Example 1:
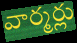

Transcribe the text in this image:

వార్మర్లు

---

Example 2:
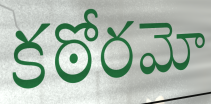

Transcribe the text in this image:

కఠోరమో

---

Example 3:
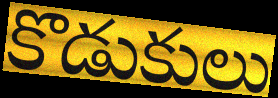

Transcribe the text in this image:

కొడుకులు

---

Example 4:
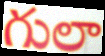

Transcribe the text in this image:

గులా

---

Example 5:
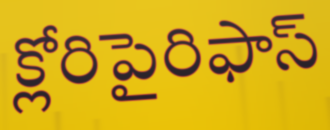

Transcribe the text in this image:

క్లోరిపైరిఫాస్